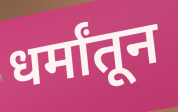
धर्मांतून